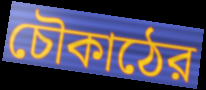
চৌকাঠের